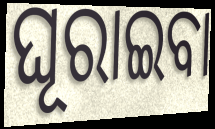
ଘୂରାଇବା